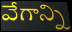
వేగాన్ని